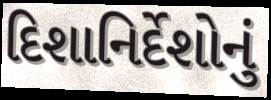
દિશાનિર્દેશોનું